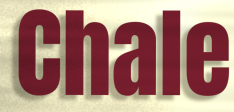
Chale